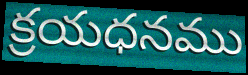
క్రయధనము